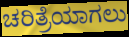
ಚರಿತ್ರೆಯಾಗಲು